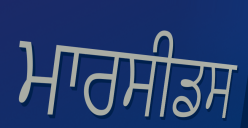
ਮਾਰਸੀਡਸ